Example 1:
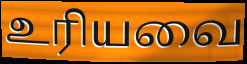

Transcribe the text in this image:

உரியவை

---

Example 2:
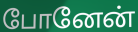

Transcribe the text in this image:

போனேன்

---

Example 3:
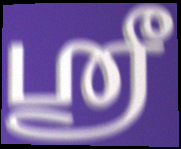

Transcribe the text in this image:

ஸ்ரீ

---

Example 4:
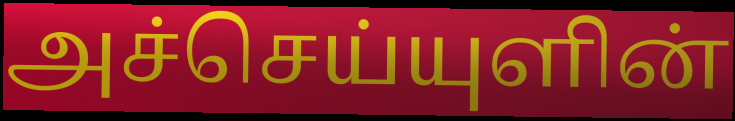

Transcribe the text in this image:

அச்செய்யுளின்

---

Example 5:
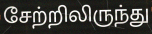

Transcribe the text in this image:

சேற்றிலிருந்து